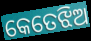
କେତେଝିଅ